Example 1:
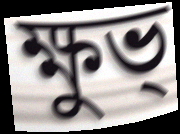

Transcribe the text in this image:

ক্ষুভ্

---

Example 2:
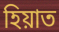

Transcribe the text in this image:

হিয়াত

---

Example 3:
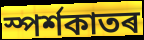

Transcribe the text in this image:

স্পৰ্শকাতৰ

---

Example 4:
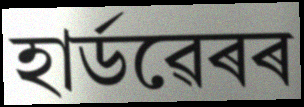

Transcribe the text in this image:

হাৰ্ডৱেৰৰ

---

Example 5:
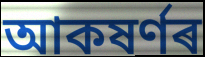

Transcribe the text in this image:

আকষৰ্ণৰ